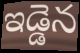
ఇడ్డెన